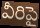
వీరిపై